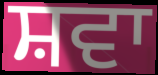
ਸ਼ਵਾ